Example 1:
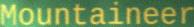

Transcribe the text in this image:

Mountaineer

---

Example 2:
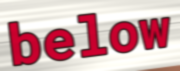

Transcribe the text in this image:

below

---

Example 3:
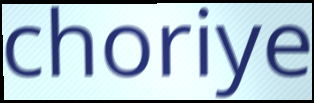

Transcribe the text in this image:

choriye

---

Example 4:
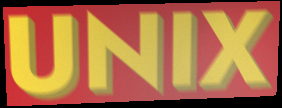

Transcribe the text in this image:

UNIX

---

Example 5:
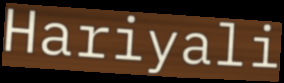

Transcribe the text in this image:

Hariyali